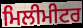
ਮਿਲੀਮੀਟਰ